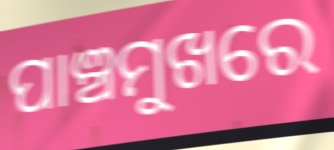
ପାଞ୍ଚମୁଖରେ